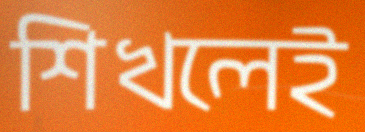
শিখলেই